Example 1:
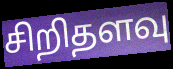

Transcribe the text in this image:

சிறிதளவு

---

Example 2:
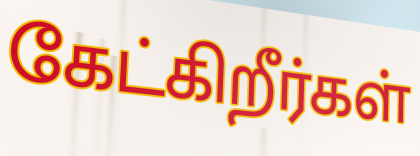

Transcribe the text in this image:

கேட்கிறீர்கள்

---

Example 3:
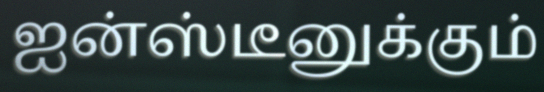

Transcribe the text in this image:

ஐன்ஸ்டீனுக்கும்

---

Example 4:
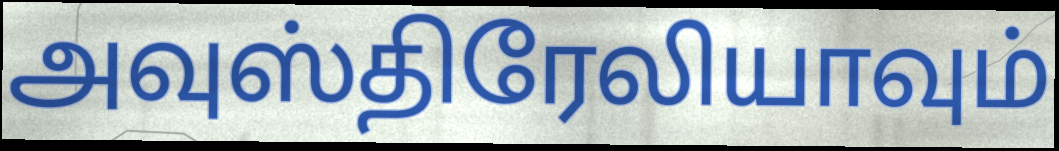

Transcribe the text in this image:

அவுஸ்திரேலியாவும்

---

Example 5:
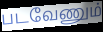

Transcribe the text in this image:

படவேணும்